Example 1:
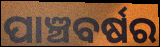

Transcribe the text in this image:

ପାଞ୍ଚବର୍ଷର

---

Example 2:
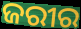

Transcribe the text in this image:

ଜରୀର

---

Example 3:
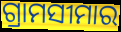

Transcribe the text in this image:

ଗ୍ରାମସୀମାର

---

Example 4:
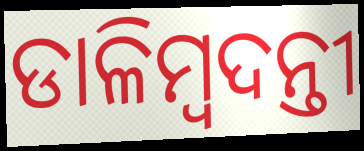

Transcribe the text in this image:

ଡାଳିମ୍ବଦନ୍ତୀ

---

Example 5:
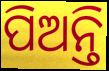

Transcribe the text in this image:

ପିଅନ୍ତି